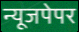
न्यूजपेपर